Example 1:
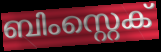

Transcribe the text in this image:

ബിംസ്റ്റെക്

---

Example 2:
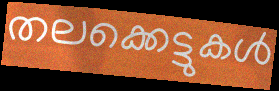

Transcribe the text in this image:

തലക്കെട്ടുകൾ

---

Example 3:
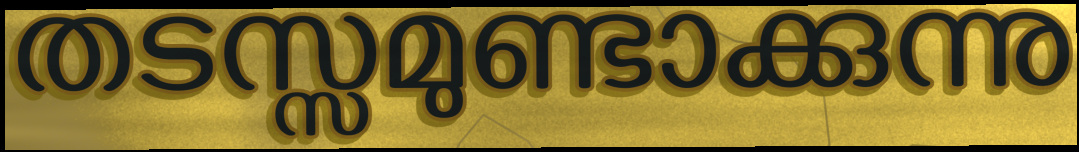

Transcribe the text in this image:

തടസ്സമുണ്ടാക്കുന്നു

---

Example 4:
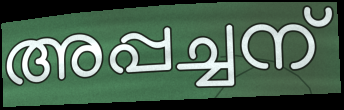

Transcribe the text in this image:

അപ്പച്ചന്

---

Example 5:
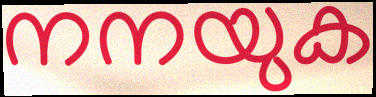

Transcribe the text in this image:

നനയുക